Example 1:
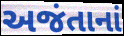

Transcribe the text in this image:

અજંતાનાં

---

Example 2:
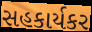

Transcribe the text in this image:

સહકાર્યકર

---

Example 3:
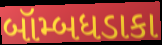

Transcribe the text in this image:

બૉમ્બધડાકા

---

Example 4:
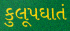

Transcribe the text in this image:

કુલૂપઘાતં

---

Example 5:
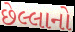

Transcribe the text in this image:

છેલ્લાનો